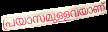
പ്രയാസമുള്ളവയാണ്